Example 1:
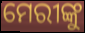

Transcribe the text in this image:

ମେରୀଙ୍କୁ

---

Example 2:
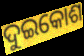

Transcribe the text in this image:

ଦୁଇକୋଶ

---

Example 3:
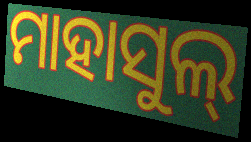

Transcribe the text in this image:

ମାହାସୁଲ୍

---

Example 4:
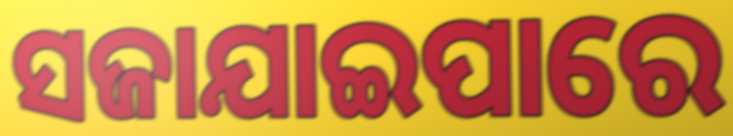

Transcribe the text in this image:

ସଜାଯାଇପାରେ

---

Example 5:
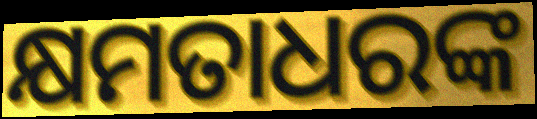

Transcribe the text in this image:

କ୍ଷମତାଧରଙ୍କ